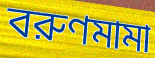
বরুণমামা